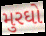
મુરઘો